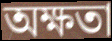
অক্ষতা